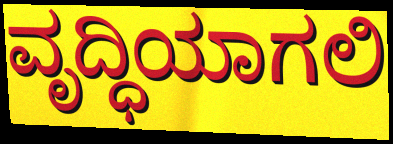
ವೃದ್ಧಿಯಾಗಲಿ